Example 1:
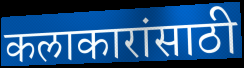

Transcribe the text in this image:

कलाकारांसाठी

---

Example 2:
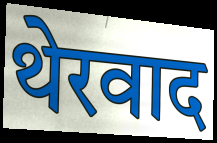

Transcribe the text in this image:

थेरवाद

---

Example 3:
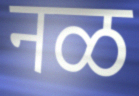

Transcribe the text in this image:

नळ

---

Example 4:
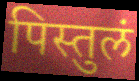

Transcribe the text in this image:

पिस्तुलं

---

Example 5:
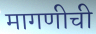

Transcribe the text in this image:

मागणीची